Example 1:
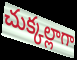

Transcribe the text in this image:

చుక్కల్లాగా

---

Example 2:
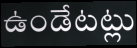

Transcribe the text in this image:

ఉండేటట్లు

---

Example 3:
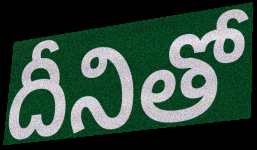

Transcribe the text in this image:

దీనితో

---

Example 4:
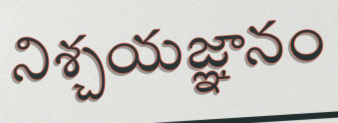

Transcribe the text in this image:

నిశ్చయజ్ఞానం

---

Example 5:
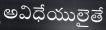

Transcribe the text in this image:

అవిధేయులైతే